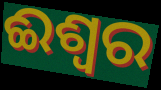
ଈଶ୍ଵର